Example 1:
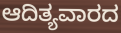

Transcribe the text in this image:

ಆದಿತ್ಯವಾರದ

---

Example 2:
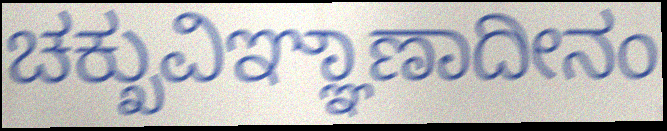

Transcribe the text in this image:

ಚಕ್ಖುವಿಞ್ಞಾಣಾದೀನಂ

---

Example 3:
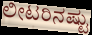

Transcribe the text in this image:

ಲೀಟರಿನಷ್ಟು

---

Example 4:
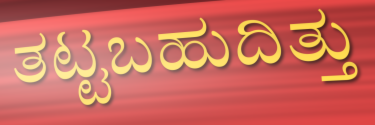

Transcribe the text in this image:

ತಟ್ಟಬಹುದಿತ್ತು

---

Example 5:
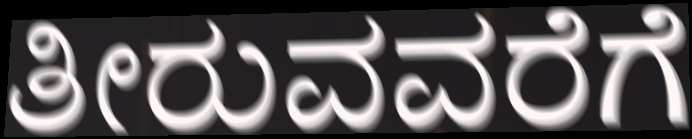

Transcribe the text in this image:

ತೀರುವವರೆಗೆ